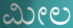
ಮೀಲ